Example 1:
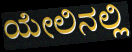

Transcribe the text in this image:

ಯೇಲಿನಲ್ಲಿ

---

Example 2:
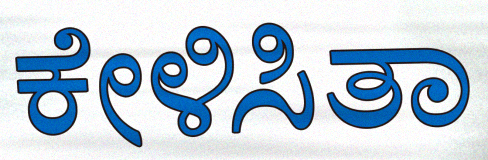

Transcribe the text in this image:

ಕೇಳಿಸಿತಾ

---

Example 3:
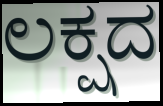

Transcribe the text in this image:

ಲಕ್ಷದ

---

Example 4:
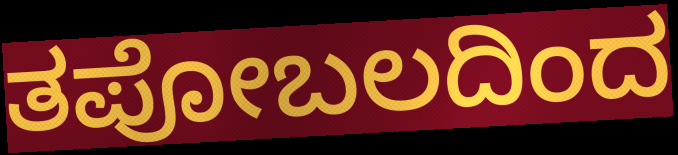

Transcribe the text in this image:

ತಪೋಬಲದಿಂದ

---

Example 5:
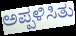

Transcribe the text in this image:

ಅಪ್ಪಳಿಸಿತು